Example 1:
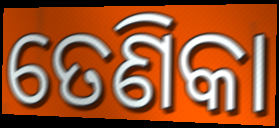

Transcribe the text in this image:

ତେଣିକା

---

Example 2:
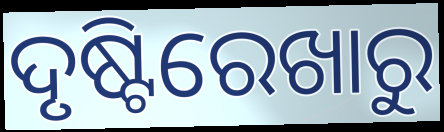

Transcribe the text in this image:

ଦୃଷ୍ଟିରେଖାରୁ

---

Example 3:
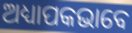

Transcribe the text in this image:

ଅଧ୍ୟାପକଭାବେ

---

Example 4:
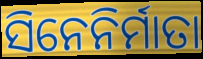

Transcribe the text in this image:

ସିନେନିର୍ମାତା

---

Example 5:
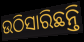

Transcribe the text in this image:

ଉଠିସାରିଛନ୍ତି